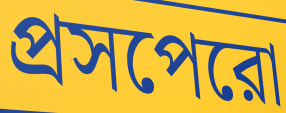
প্রসপেরো